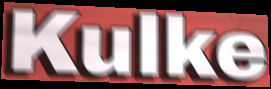
Kulke